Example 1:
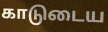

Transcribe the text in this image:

காடுடைய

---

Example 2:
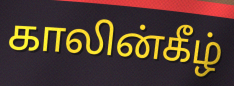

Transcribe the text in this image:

காலின்கீழ்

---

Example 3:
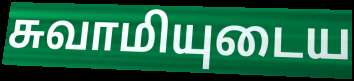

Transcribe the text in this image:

சுவாமியுடைய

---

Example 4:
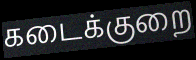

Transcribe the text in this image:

கடைக்குறை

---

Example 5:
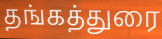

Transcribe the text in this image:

தங்கத்துரை